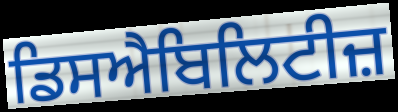
ਡਿਸਐਬਿਲਿਟੀਜ਼